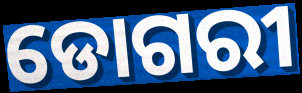
ଡୋଗରୀ